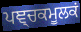
ਪਞ੍ਚਕਮੂਲਕਂ